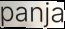
panja